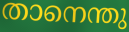
താനെന്തു